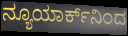
ನ್ಯೂಯಾರ್ಕ್‌ನಿಂದ